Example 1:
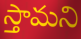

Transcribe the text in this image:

స్తామని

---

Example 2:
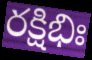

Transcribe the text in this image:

రక్షిభిః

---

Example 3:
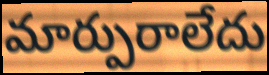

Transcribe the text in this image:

మార్పురాలేదు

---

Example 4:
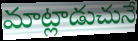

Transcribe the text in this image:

మాట్లాడుచునే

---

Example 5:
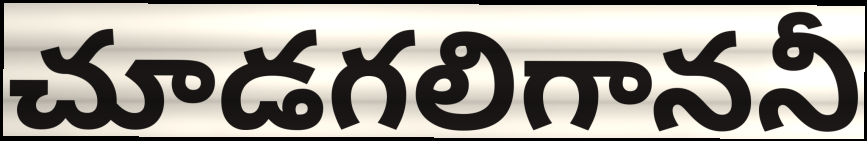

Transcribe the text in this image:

చూడగలిగాననీ